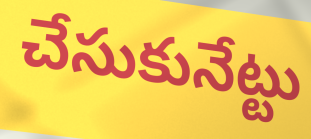
చేసుకునేట్టు